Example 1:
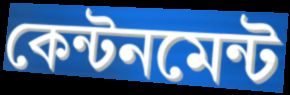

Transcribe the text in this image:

কেন্টনমেন্ট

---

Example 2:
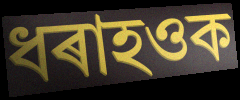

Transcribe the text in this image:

ধৰাহওক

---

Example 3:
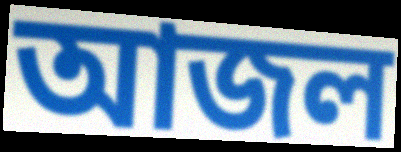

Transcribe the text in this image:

আজল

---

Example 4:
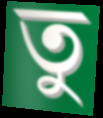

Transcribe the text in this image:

তু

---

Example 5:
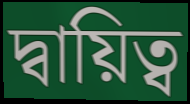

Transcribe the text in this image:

দ্বায়িত্ব